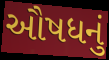
ઔષધનું